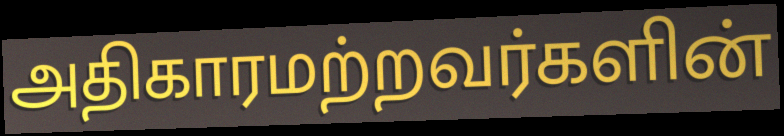
அதிகாரமற்றவர்களின்